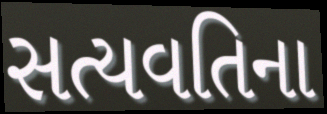
સત્યવતિના